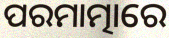
ପରମାତ୍ମାରେ